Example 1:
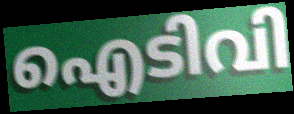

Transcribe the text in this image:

ഐടിവി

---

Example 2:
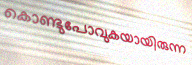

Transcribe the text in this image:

കൊണ്ടുപോവുകയായിരുന്ന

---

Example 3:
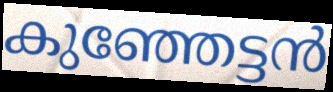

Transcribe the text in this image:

കുഞ്ഞേട്ടൻ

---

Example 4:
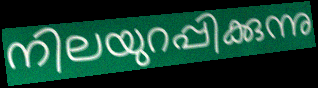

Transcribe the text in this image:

നിലയുറപ്പിക്കുന്നു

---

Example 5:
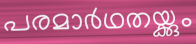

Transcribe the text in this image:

പരമാർഥതയ്ക്കും